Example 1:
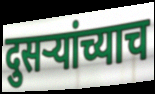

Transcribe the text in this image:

दुसऱ्यांच्याच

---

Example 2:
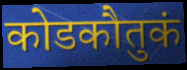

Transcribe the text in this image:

कोडकौतुकं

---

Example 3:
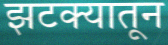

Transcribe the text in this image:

झटक्यातून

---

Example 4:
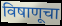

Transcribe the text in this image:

विषाणूचा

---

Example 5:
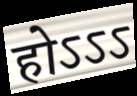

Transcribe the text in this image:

होऽऽऽ